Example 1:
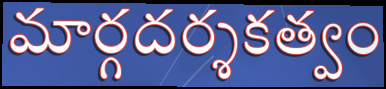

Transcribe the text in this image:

మార్గదర్శకత్వం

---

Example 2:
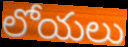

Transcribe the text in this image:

లోయలు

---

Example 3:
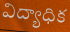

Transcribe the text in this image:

విద్యాధిక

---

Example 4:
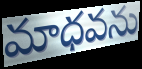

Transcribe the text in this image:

మాధవను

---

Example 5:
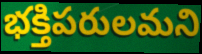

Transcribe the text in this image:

భక్తిపరులమని